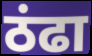
ठंढा